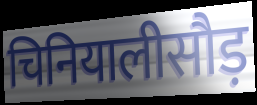
चिनियालीसौड़